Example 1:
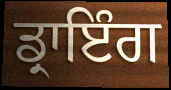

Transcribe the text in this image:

ਡ੍ਰਾਇੰਗ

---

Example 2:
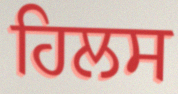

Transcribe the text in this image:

ਹਿਲਸ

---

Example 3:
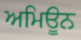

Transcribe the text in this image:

ਅਮਿਊਨ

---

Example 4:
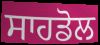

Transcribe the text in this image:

ਸਾਹਡੋਲ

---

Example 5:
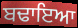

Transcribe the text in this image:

ਬਢਾਇਆ